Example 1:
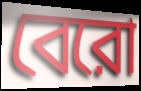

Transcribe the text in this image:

বেরো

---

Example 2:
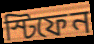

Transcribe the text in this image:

স্টিফেন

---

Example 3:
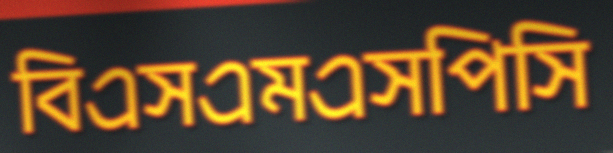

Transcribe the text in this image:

বিএসএমএসপিসি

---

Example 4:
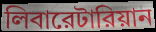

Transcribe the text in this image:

লিবারেটারিয়ান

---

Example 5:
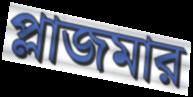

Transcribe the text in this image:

প্লাজমার